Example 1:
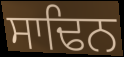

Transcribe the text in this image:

ਸਾਢਿਨ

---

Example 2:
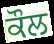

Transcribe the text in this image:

ਕੌਲ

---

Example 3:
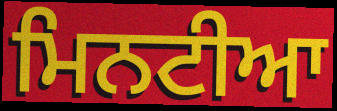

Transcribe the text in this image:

ਮਿਨਟੀਆ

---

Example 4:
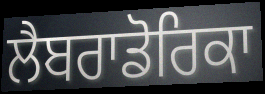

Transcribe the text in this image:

ਲੈਬਰਾਡੋਰਿਕਾ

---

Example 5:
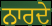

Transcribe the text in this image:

ਨਾਰਦੇ